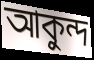
আকুন্দ